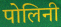
पोलिनी